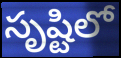
సృష్టిలో